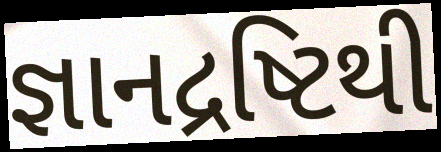
જ્ઞાનદ્રષ્ટિથી